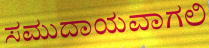
ಸಮುದಾಯವಾಗಲಿ